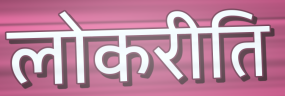
लोकरीति